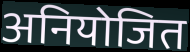
अनियोजित